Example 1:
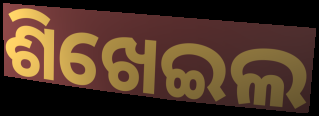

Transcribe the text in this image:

ଶିଖେଇଲ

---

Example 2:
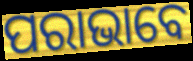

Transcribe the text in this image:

ପରାଭାବେ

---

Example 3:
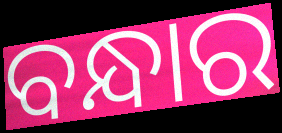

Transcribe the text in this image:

ବନ୍ଧାର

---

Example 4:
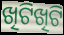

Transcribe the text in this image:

ଖିଟିଖିଟି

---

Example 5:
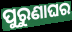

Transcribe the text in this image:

ପୁରୁଣାଘର